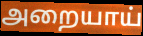
அறையாய்